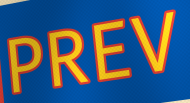
PREV